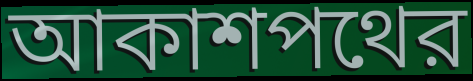
আকাশপথের